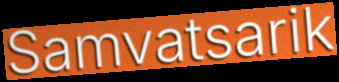
Samvatsarik